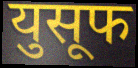
युसूफ